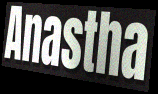
Anastha